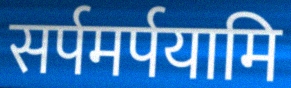
सर्पमर्पयामि